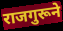
राजगुरूने